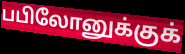
பபிலோனுக்குக்